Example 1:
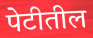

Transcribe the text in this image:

पेटीतील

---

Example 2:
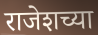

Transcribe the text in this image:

राजेशच्या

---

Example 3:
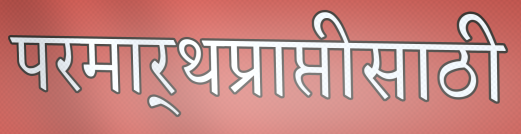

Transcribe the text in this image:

परमार्थप्राप्तीसाठी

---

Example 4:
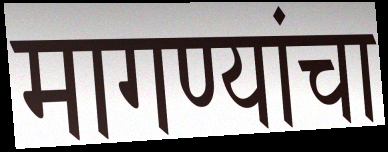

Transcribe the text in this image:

मागण्यांचा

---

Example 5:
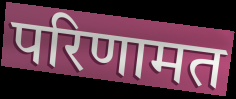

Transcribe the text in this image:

परिणामत